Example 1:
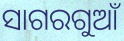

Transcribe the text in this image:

ସାଗରଗୁଆଁ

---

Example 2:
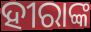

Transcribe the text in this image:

ହୀରାଙ୍କ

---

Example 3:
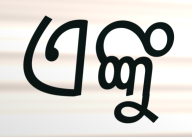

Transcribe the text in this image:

ଏଙ୍କୁ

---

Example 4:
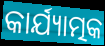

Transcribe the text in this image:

କାର୍ଯ୍ୟାତ୍ମକ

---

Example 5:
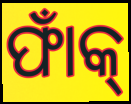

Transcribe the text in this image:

ଫାଁକ୍